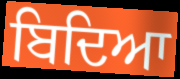
ਬਿਦਿਆ